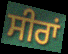
ਸੀਰਾਂ